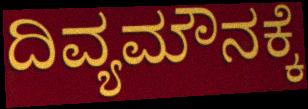
ದಿವ್ಯಮೌನಕ್ಕೆ